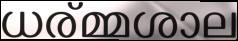
ധര്മ്മശാല